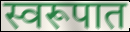
स्वरूपात